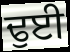
ਢੁਈ